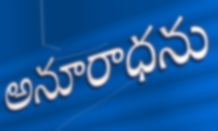
అనూరాధను